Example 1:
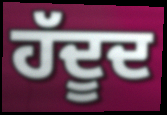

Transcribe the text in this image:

ਹੱਦੂਦ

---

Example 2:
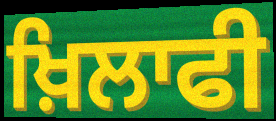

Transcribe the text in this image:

ਖ਼ਿਲਾਫੀ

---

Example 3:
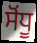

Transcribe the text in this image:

ਸੋਂਧੂ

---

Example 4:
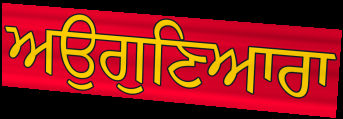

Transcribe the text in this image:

ਅਉਗੁਣਿਆਰਾ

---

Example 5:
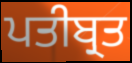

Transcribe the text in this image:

ਪਤੀਬ੍ਰਤ